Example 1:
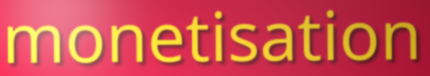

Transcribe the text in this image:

monetisation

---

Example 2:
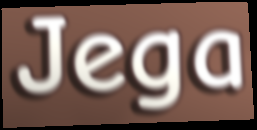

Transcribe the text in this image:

Jega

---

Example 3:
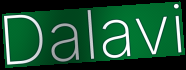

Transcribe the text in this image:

Dalavi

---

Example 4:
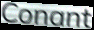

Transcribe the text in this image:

Conant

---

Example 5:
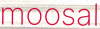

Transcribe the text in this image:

moosal